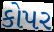
કોપર